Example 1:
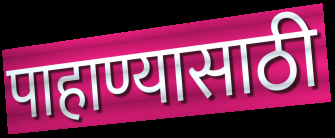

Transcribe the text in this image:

पाहाण्यासाठी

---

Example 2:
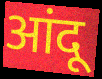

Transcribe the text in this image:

आंदू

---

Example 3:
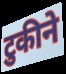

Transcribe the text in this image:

टुकीने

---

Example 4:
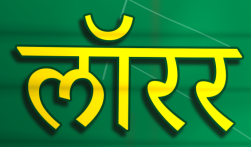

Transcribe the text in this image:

लॉरर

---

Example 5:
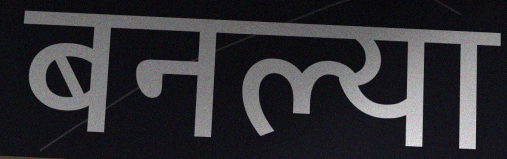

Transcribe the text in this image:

बनल्या